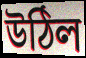
উঠিল